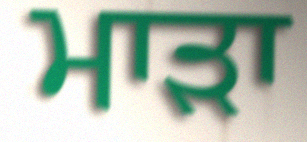
ਮਾਡ਼ਾ